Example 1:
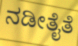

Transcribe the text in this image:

ನಡೀತೈತೆ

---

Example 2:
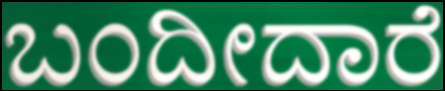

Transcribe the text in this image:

ಬಂದೀದಾರೆ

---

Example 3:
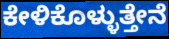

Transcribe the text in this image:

ಕೇಳಿಕೊಳ್ಳುತ್ತೇನೆ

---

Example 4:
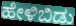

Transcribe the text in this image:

ಹೇಳಿಬಿಡು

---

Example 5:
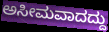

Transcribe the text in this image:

ಅಸೀಮವಾದದ್ದು